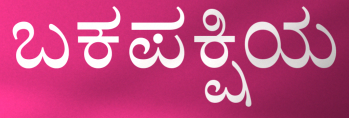
ಬಕಪಕ್ಷಿಯ